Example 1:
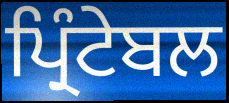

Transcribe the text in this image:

ਪ੍ਰਿੰਟੇਬਲ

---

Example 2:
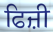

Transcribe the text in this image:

ਫਿਜ਼ੀ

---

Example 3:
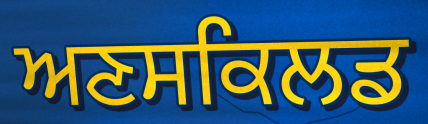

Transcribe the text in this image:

ਅਣਸਕਿਲਡ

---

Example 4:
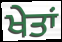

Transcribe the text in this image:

ਖੇਤਾਂ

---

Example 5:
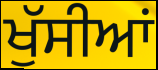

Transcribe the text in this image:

ਖੁੱਸੀਆਂ